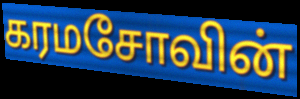
கரமசோவின்